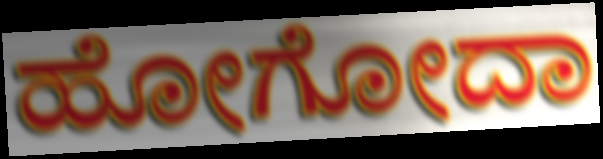
ಹೋಗೋದಾ